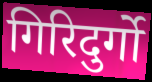
गिरिदुर्गो